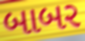
બાબર